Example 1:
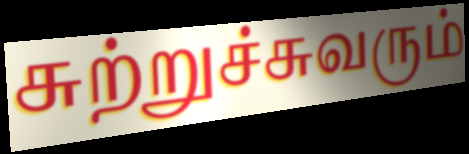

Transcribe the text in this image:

சுற்றுச்சுவரும்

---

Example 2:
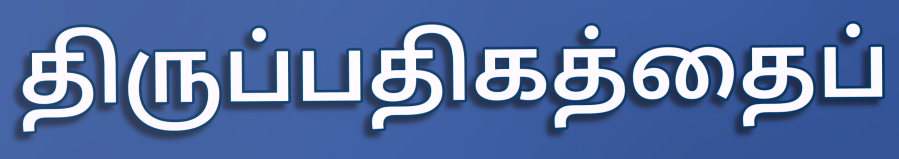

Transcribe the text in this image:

திருப்பதிகத்தைப்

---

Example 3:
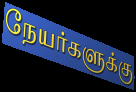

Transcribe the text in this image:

நேயர்களுக்கு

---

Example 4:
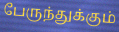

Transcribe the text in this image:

பேருந்துக்கும்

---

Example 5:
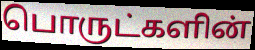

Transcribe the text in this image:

பொருட்களின்